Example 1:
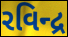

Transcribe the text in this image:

રવિન્દ્ર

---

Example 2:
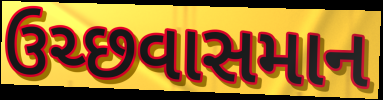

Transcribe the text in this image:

ઉચ્છવાસમાન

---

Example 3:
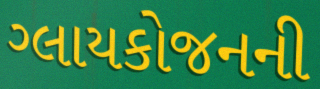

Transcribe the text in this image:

ગ્લાયકોજનની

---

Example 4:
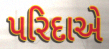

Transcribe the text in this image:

પરિદાએ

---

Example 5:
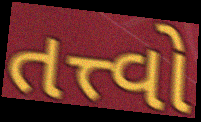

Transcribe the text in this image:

તત્ત્વો